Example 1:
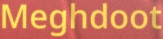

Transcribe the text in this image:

Meghdoot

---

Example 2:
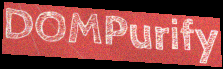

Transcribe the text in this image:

DOMPurify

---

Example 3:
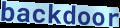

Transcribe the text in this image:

backdoor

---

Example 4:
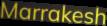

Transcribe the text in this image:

Marrakesh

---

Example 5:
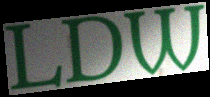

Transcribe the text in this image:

LDW